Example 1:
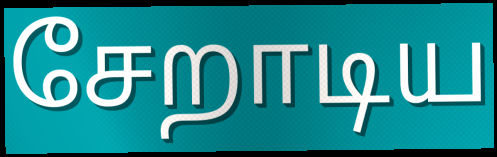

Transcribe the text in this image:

சேறாடிய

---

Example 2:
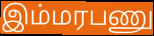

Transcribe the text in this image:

இம்மரபணு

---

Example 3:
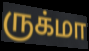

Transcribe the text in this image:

ருக்மா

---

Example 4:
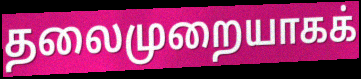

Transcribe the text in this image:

தலைமுறையாகக்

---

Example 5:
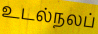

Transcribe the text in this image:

உடல்நலப்